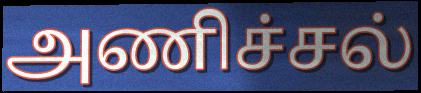
அணிச்சல்